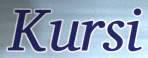
Kursi